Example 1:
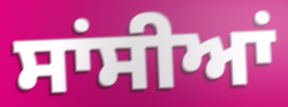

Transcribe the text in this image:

ਸਾਂਸੀਆਂ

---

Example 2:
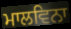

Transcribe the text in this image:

ਮਾਲਵਿਨਾ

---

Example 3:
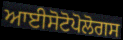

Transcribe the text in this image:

ਆਈਸੋਟੋਪੋਲੋਗਸ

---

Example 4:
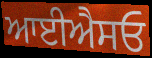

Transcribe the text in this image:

ਆਈਐਸਓ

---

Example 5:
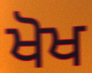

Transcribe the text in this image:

ਖੋਖ